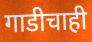
गाडीचाही